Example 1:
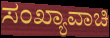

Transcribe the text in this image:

ಸಂಖ್ಯಾವಾಚಿ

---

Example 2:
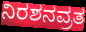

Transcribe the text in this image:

ನಿರಶನವ್ರತ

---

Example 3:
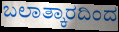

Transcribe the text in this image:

ಬಲಾತ್ಕಾರದಿಂದ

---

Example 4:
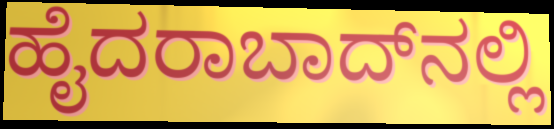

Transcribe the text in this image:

ಹೈದರಾಬಾದ್‌ನಲ್ಲಿ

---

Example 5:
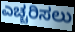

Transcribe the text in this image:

ಎಚ್ಚರಿಸಲು